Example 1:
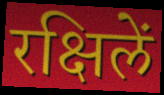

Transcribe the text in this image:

रक्षिलें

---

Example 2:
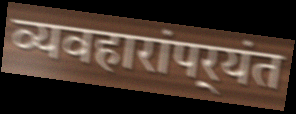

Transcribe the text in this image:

व्यवहारांपर्यंत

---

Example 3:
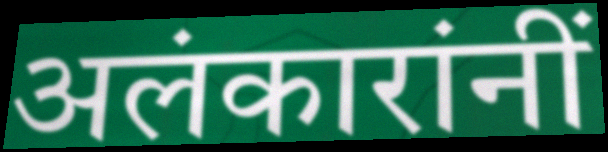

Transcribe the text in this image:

अलंकारांनीं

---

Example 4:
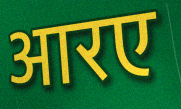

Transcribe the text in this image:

आरए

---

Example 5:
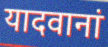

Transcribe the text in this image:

यादवानां